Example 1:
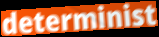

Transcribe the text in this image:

determinist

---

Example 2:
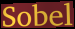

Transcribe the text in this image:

Sobel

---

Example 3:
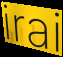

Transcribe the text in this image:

irai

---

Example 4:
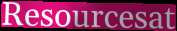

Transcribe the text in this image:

Resourcesat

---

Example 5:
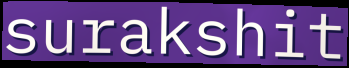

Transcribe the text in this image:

surakshit